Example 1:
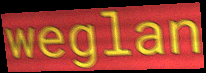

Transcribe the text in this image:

weglan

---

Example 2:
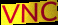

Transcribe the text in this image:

VNC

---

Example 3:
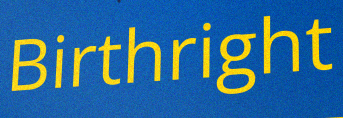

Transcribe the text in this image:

Birthright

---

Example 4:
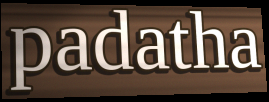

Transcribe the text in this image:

padatha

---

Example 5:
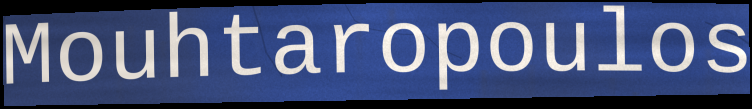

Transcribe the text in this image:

Mouhtaropoulos